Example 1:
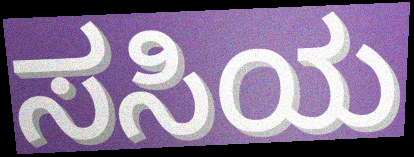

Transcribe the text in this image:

ಸಸಿಯ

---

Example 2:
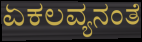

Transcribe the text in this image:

ಏಕಲವ್ಯನಂತೆ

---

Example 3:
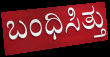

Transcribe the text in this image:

ಬಂಧಿಸಿತ್ತು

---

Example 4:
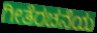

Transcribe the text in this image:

ಗೀತೆರಚನೆಯ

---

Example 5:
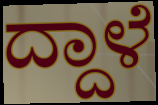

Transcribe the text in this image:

ದ್ದಾಳೆ